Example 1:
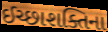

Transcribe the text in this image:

ઈચ્છાશક્તિના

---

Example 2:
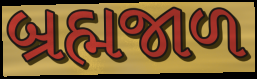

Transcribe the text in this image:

બ્રહ્મજાળ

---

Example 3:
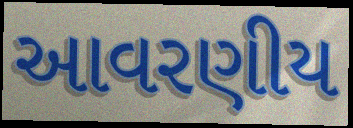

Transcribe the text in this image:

આવરણીય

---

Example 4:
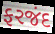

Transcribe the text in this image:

ફરજંદ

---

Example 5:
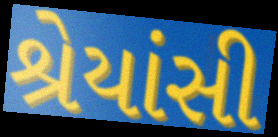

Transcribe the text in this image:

શ્રેયાંસી